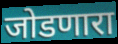
जोडणारा